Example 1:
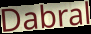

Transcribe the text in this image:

Dabral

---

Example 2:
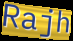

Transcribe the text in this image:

Rajh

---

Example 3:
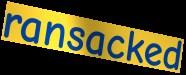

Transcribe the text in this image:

ransacked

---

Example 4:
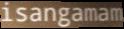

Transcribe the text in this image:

isangamam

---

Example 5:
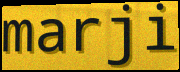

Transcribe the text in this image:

marji